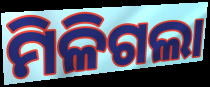
ମିଳିଗଲା